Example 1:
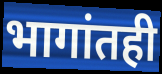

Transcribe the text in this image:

भागांतही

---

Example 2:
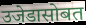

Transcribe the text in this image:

उजेडासोबत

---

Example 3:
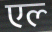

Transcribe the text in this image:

एल्‍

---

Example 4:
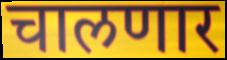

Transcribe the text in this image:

चालणार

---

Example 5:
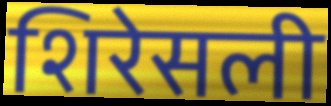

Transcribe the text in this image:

शिरेसली